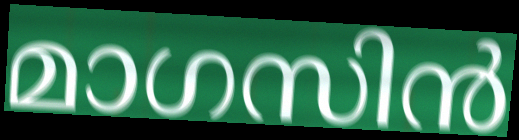
മാഗസിൻ